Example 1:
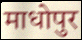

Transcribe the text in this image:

माधोपुर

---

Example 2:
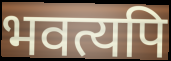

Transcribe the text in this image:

भवत्यपि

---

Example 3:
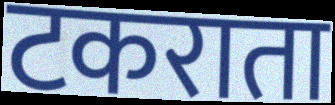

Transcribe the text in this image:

टकराता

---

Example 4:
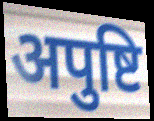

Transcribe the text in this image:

अपुष्टि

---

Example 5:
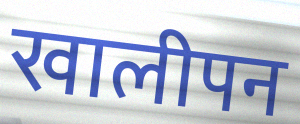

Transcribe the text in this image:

खालीपन